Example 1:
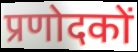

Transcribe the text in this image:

प्रणोदकों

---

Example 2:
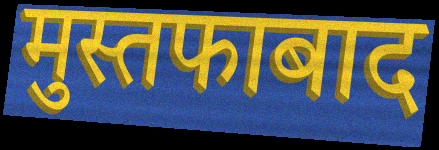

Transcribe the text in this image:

मुस्तफाबाद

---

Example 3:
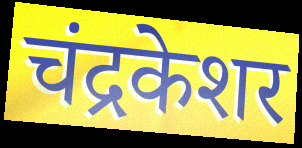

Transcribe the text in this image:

चंद्रकेशर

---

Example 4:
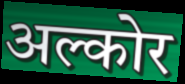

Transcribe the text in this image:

अल्कोर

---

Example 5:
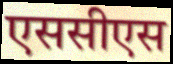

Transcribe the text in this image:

एससीएस